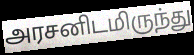
அரசனிடமிருந்து